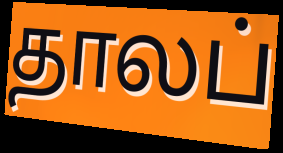
தாலப்